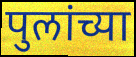
पुलांच्या